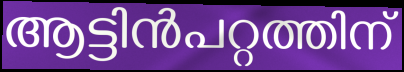
ആട്ടിൻപറ്റത്തിന്